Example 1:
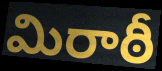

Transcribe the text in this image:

మిరాఠీ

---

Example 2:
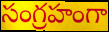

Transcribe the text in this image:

సంగ్రహంగా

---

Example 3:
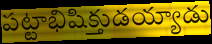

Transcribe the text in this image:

పట్టాభిషిక్తుడయ్యాడు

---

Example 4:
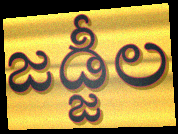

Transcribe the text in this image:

జడ్జీల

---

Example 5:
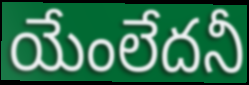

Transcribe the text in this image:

యేంలేదనీ